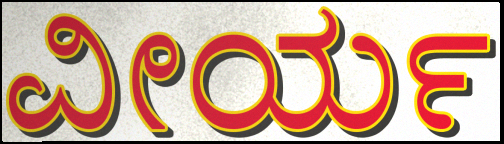
ವೀರ್ಯ